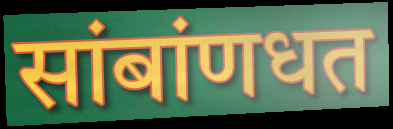
सांबांणधत